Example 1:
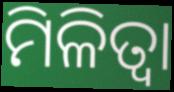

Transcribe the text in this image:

ମିଳିତ୍ଵା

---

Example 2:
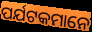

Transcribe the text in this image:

ପର୍ଯଟକମାନେ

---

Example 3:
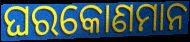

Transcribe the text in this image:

ଘରକୋଣମାନ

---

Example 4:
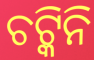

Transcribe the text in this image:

ଚଟ୍କିନି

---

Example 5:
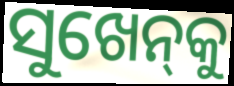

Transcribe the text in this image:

ସୁଖେନ୍‌କୁ